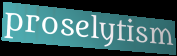
proselytism